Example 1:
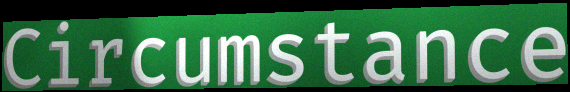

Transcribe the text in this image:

Circumstance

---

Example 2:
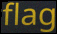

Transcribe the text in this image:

flag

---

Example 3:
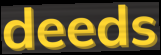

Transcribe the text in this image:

deeds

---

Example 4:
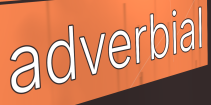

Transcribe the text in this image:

adverbial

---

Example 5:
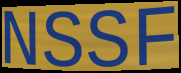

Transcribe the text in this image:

NSSF